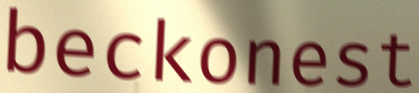
beckonest